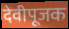
देवीपूजक